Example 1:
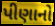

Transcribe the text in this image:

પીણાનો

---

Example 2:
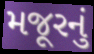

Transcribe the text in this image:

મજૂરનું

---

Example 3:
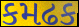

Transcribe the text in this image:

કમઢક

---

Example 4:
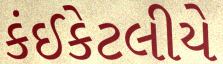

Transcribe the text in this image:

કંઈકેટલીયે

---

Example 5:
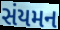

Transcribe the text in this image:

સંયમન